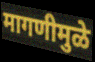
मागणीमुळे